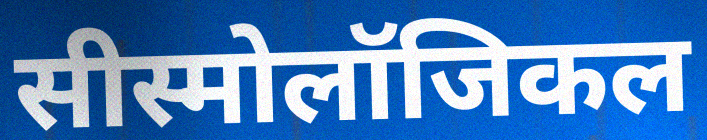
सीस्मोलॉजिकल